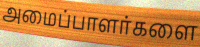
அமைப்பாளர்களை